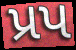
પ્રપ